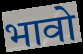
भावो